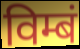
विम्बं